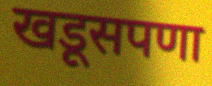
खडूसपणा